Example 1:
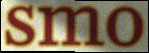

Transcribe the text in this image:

smo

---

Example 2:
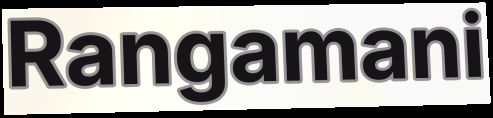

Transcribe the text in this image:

Rangamani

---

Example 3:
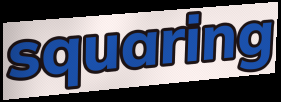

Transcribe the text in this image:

squaring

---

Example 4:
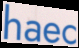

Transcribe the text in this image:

haec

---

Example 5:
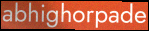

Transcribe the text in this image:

abhighorpade